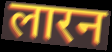
लारन